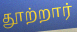
தூற்றார்